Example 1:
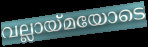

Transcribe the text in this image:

വല്ലായ്മയോടെ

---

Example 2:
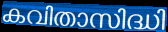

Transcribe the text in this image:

കവിതാസിദ്ധി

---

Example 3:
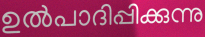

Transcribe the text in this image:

ഉൽപാദിപ്പിക്കുന്നു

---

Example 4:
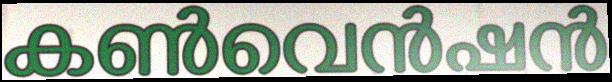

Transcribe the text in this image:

കൺവെൻഷൻ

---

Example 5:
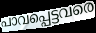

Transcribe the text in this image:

പാവപ്പെട്ടവരെ